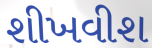
શીખવીશ